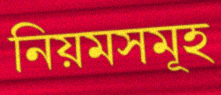
নিয়মসমূহ